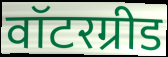
वॉटरग्रीड